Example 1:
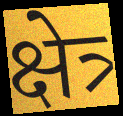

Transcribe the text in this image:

क्षेत्र्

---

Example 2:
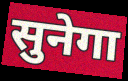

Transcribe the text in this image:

सुनेगा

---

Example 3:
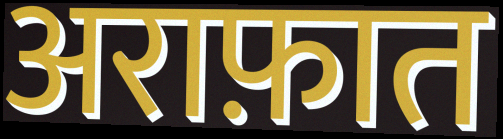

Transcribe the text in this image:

अराफ़ात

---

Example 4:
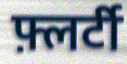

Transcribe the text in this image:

फ़्लर्टी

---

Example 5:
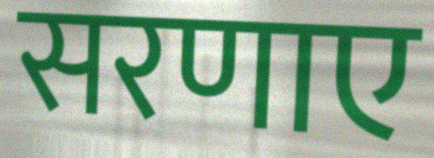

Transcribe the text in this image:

सरणाए